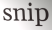
snip